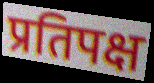
प्रतिपक्ष